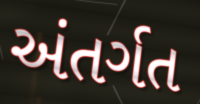
અંતર્ગત